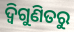
ଦ୍ୱିଗୁଣିତରୁ